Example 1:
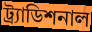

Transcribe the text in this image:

ট্র্যাডিশনাল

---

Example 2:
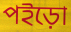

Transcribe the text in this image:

পইড়ো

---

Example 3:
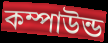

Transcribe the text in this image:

কম্পাউন্ড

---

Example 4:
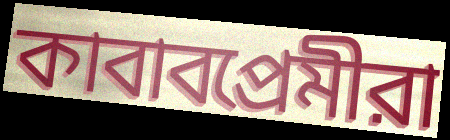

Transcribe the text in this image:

কাবাবপ্রেমীরা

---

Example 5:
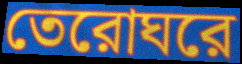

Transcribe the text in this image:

তেরোঘরে